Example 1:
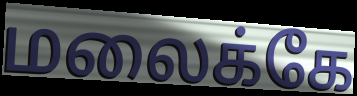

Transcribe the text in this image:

மலைக்கே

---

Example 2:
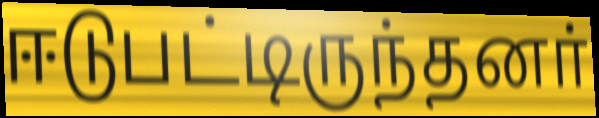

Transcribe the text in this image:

ஈடுபட்டிருந்தனர்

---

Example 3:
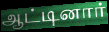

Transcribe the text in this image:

ஆட்டினார்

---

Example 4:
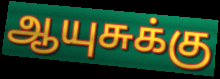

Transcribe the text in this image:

ஆயுசுக்கு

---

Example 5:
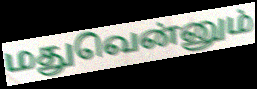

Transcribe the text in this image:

மதுவென்னும்